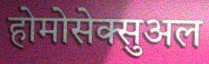
होमोसेक्सुअल